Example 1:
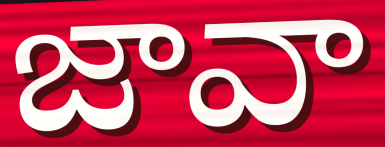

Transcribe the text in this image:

జావా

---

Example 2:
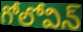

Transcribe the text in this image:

గోలోవిన్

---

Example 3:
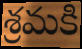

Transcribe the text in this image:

శ్రమకి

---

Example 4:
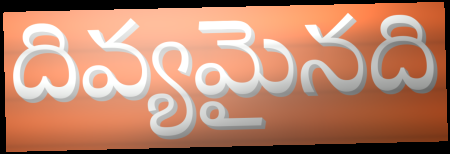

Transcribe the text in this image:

దివ్యమైనది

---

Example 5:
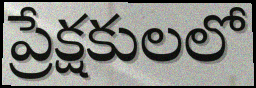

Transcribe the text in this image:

ప్రేక్షకులలో